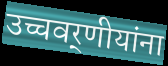
उच्चवर्णीयांना